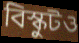
বিস্কুটও